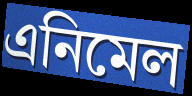
এনিমেল